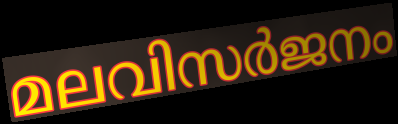
മലവിസർജനം